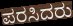
ಪರಸಿದರು